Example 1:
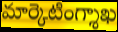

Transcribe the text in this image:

మార్కెటింగ్శాఖ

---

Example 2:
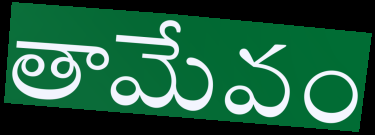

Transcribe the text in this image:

తామేవం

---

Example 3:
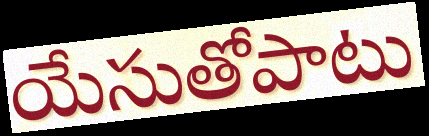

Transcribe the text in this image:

యేసుతోపాటు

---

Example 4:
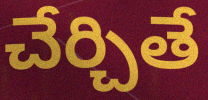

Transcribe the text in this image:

చేర్చితే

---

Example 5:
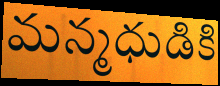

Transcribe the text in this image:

మన్మధుడికి